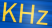
KHz